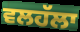
ਵਲਹੱਲਾ